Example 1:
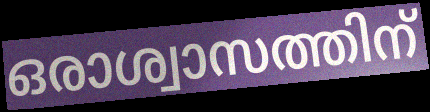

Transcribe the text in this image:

ഒരാശ്വാസത്തിന്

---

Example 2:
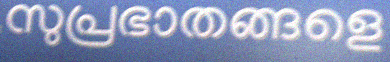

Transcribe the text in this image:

സുപ്രഭാതങ്ങളെ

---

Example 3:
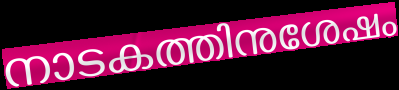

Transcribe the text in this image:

നാടകത്തിനുശേഷം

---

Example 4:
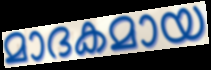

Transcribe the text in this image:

മാദകമായ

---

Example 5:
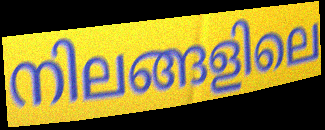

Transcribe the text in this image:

നിലങ്ങളിലെ